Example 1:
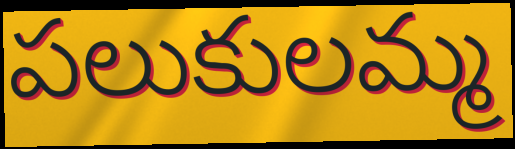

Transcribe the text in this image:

పలుకులమ్మ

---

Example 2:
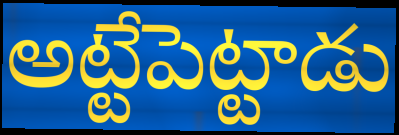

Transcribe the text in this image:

అట్టేపెట్టాడు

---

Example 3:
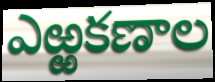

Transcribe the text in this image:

ఎఱ్ఱకణాల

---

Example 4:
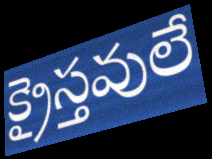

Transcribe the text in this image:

క్రైస్తవులే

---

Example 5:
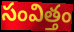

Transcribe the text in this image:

సంవిత్తం